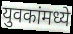
युवकांमध्ये